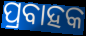
ପ୍ରବାହକ